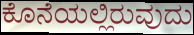
ಕೊನೆಯಲ್ಲಿರುವುದು